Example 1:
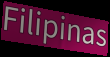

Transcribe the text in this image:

Filipinas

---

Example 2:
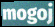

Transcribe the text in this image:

mogoj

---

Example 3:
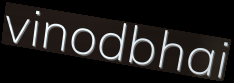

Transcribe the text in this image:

vinodbhai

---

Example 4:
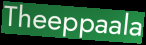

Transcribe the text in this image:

Theeppaala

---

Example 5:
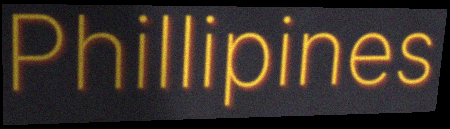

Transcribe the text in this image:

Phillipines